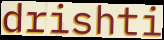
drishti